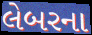
લેબરના